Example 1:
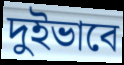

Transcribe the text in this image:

দুইভাবে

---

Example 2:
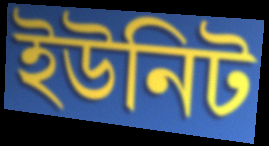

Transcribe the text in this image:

ইউনিট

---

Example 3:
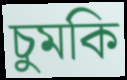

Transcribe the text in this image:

চুমকি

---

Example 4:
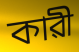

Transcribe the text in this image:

কাৱী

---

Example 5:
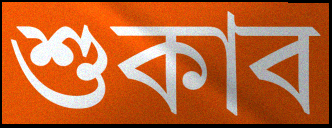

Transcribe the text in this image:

শুকাব